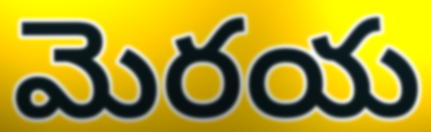
మెరయ